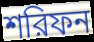
শরিফন